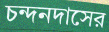
চন্দনদাসের